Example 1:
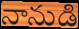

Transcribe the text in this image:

నానుడి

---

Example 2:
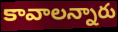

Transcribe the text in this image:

కావాలన్నారు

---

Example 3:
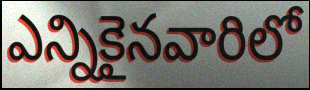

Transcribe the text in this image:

ఎన్నికైనవారిలో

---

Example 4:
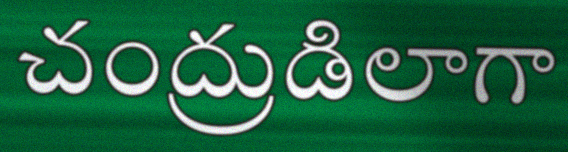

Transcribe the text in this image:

చంద్రుడిలాగా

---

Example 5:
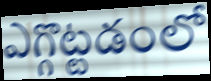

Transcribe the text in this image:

ఎగ్గొట్టడంలో